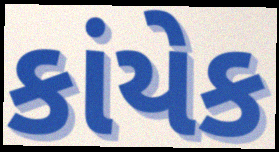
કાંયેક